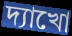
দ্যাখো